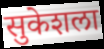
सुकेशला